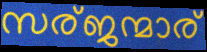
സര്ജന്മാര്